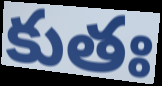
కుతః